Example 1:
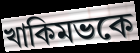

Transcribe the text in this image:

খাকিমভকে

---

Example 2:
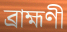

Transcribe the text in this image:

ব্রাহ্মণী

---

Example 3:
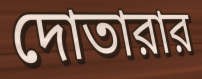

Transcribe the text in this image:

দোতারার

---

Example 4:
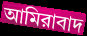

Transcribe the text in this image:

আমিরাবাদ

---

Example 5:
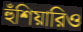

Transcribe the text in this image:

হুঁশিয়ারিও